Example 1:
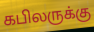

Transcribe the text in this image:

கபிலருக்கு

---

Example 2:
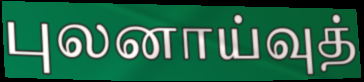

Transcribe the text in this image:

புலனாய்வுத்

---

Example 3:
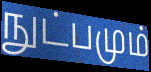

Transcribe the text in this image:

நுட்பமும்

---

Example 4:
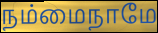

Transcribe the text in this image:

நம்மைநாமே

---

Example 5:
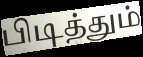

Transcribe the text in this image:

பிடித்தும்